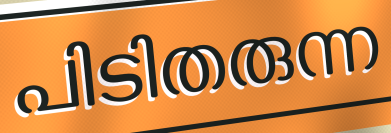
പിടിതരുന്ന